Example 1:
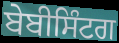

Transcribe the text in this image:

ਬੇਬੀਸਿੰਟਗ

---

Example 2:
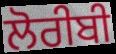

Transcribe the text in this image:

ਲੋਰੀਬੀ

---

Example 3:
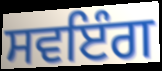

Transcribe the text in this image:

ਸਵਇੰਗ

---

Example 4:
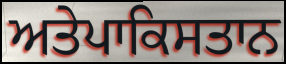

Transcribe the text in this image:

ਅਤੇਪਾਕਿਸਤਾਨ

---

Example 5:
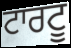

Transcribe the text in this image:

ਟਾਰਟੂ